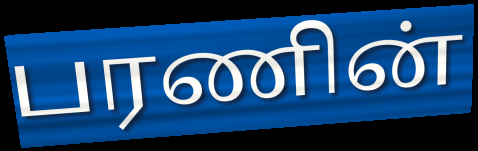
பரணின்